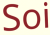
Soi